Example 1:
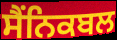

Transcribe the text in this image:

ਸੈੰਨਿਕਬਲ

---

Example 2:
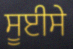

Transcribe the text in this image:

ਸੂਈਸੇ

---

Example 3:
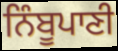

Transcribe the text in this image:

ਨਿੰਬੂਪਾਣੀ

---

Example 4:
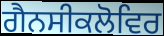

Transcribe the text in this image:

ਗੈਨਸੀਕਲੋਵਿਰ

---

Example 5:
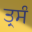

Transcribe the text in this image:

ਤ੍ਰਸੰ